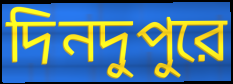
দিনদুপুরে